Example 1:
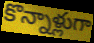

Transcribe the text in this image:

కొన్నాళ్లుగా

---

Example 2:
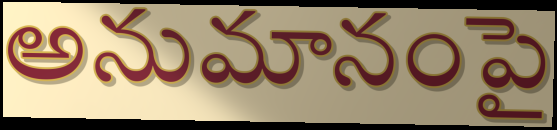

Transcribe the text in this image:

అనుమానంపై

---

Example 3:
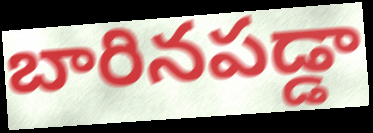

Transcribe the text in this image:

బారినపడ్డా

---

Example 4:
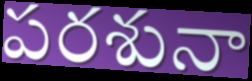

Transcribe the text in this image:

పరశునా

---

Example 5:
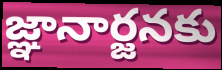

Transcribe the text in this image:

జ్ఞానార్జనకు